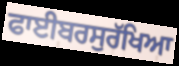
ਫਾਈਬਰਸੁਰੱਖਿਆ